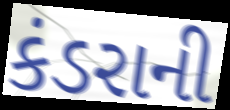
કંડરાની